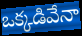
ఒక్కడివేనా